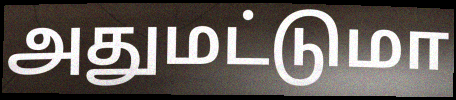
அதுமட்டுமா